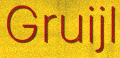
Gruijl